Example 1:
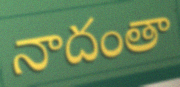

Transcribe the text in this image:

నాదంతా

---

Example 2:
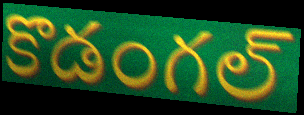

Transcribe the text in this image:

కొడంగల్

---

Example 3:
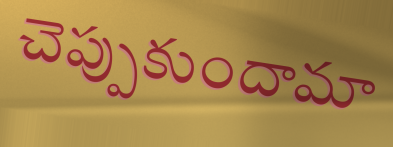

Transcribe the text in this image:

చెప్పుకుందామా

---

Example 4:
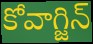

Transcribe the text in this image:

కోవాగ్జిన్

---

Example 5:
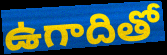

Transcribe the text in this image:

ఉగాదితో